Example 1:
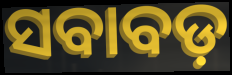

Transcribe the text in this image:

ସବାବଡ଼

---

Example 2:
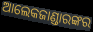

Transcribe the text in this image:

ଆଲେକଜାଣ୍ଡାରଙ୍କର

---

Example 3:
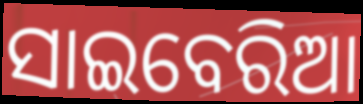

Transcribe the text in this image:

ସାଇବେରିଆ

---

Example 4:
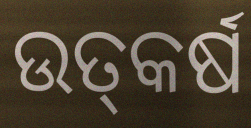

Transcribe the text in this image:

ଉତ୍‌କର୍ଷ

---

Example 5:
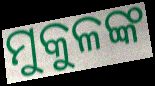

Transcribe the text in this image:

ମୁକୁଳଙ୍କ